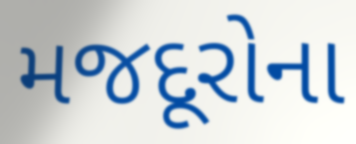
મજદૂરોના